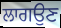
ਲਾਗਉਣ